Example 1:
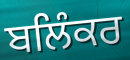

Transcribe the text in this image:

ਬਲਿੰਕਰ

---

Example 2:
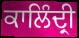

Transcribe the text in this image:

ਕਾਲਿੰਦ੍ਰੀ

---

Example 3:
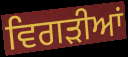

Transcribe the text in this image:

ਵਿਗੜੀਆਂ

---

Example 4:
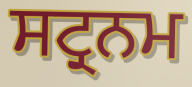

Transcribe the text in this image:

ਸਟ੍ਰਨਮ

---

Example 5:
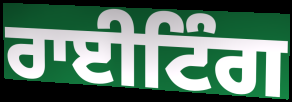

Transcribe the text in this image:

ਰਾਈਟਿੰਗ